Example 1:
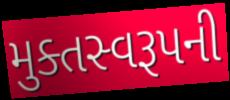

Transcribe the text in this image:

મુક્તસ્વરૂપની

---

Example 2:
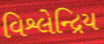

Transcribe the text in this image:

વિશ્લેન્દ્રિય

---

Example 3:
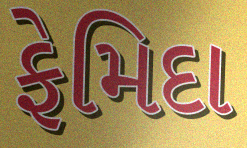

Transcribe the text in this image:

ફેમિદા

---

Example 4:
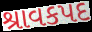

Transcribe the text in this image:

શ્રાવકપદ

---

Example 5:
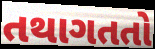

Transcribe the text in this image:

તથાગતતો